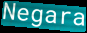
Negara